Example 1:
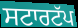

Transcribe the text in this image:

ਸਟਾਰਟੱਪ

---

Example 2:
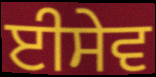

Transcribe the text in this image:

ਈਸੇਵ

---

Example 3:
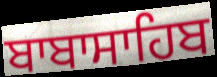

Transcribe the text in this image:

ਬਾਬਾਸਾਹਿਬ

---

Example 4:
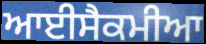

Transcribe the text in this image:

ਆਈਸੈਕਮੀਆ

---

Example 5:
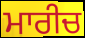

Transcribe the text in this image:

ਮਾਰੀਚ